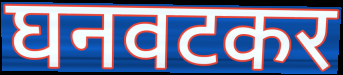
घनवटकर